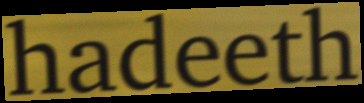
hadeeth